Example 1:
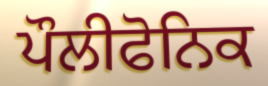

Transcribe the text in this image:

ਪੌਲੀਫੋਨਿਕ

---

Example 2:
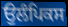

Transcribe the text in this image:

ਉਲੰਪਿਕਸ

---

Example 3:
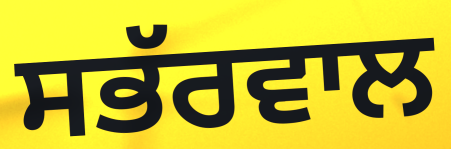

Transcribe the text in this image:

ਸਭੱਰਵਾਲ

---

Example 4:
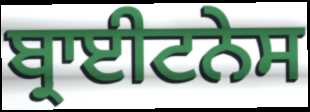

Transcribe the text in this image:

ਬ੍ਰਾਈਟਨੇਸ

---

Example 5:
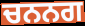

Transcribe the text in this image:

ਚਨਨਗ